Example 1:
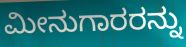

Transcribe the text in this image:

ಮೀನುಗಾರರನ್ನು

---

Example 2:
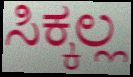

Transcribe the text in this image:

ಸಿಕ್ಕಲ್ಲ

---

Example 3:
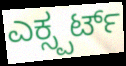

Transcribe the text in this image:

ಎಕ್ಸ್ಪರ್ಟ್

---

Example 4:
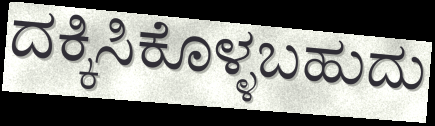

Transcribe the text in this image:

ದಕ್ಕಿಸಿಕೊಳ್ಳಬಹುದು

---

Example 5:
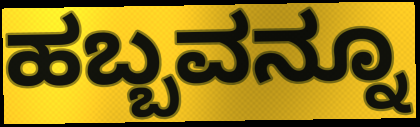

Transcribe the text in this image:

ಹಬ್ಬವನ್ನೂ